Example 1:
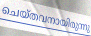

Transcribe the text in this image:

ചെയ്തവനായിരുന്നു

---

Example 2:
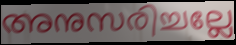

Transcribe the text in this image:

അനുസരിച്ചല്ലേ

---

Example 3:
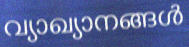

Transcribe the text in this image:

വ്യാഖ്യാനങ്ങൾ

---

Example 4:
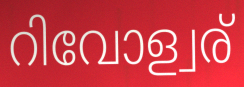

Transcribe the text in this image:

റിവോള്വര്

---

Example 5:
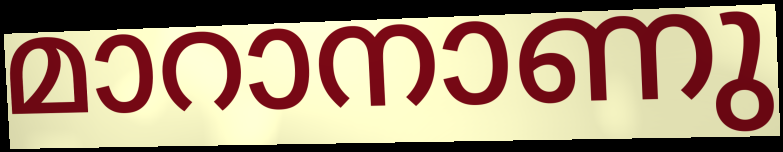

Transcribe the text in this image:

മാറാനാണു